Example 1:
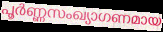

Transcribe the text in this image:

പൂർണ്ണസംഖ്യാഗണമായ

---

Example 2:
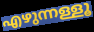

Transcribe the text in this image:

എഴുന്നള്ളൂ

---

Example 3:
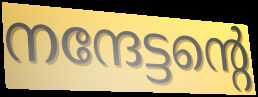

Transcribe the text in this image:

നന്ദേട്ടന്റെ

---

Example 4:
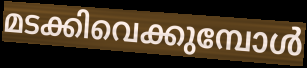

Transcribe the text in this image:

മടക്കിവെക്കുമ്പോൾ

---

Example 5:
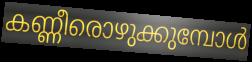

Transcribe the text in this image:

കണ്ണീരൊഴുക്കുമ്പോൾ